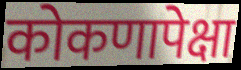
कोकणापेक्षा